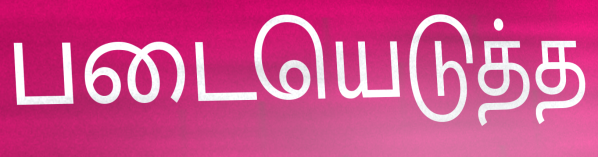
படையெடுத்த